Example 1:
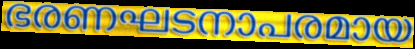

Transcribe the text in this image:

ഭരണഘടനാപരമായ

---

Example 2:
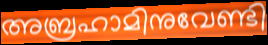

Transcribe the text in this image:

അബ്രഹാമിനുവേണ്ടി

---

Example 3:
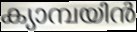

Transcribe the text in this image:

ക്യാമ്പയിൻ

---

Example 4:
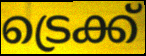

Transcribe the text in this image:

ട്രെക്ക്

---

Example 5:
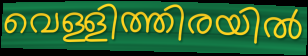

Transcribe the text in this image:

വെള്ളിത്തിരയിൽ